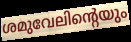
ശമുവേലിന്റെയും